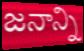
జనాన్ని